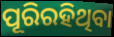
ପୂରିରହିଥିବା